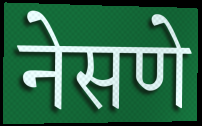
नेसणे